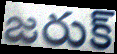
జరుక్